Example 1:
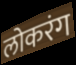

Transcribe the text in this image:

लोकरंग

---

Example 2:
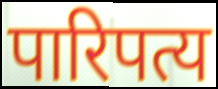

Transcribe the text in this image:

पारिपत्य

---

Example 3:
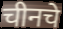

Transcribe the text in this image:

चीनचे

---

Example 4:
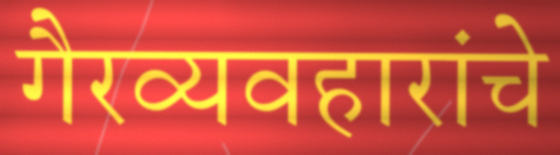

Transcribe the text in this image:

गैरव्यवहारांचे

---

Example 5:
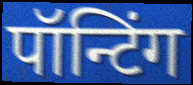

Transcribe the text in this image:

पॉन्टिंग